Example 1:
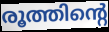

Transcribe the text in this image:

രൂത്തിന്റെ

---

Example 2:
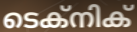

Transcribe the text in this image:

ടെക്നിക്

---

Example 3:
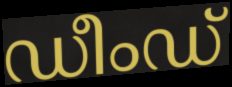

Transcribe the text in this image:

ഡീംഡ്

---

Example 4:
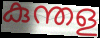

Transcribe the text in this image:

കുന്തള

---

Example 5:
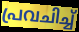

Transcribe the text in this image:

പ്രവചിച്ച്